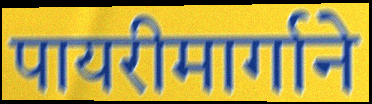
पायरीमार्गाने